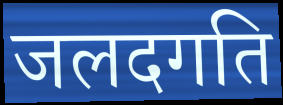
जलदगति